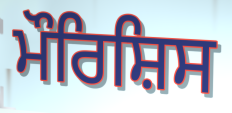
ਮੌਰਿਸ਼ਿਸ